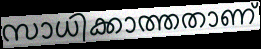
സാധിക്കാത്തതാണ്